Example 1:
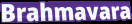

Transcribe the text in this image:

Brahmavara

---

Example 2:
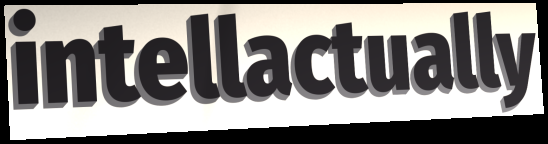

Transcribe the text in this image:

intellactually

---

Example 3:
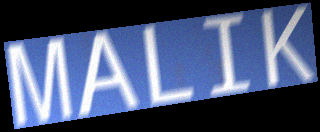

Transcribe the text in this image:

MALIK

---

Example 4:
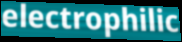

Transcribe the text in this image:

electrophilic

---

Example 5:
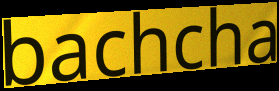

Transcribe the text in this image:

bachcha